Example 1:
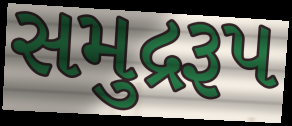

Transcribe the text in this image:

સમુદ્રરૂપ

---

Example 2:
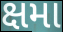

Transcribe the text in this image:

ક્ષમા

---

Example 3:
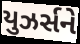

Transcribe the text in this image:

યુઝર્સને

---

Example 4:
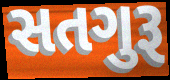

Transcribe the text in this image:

સતગુરૂ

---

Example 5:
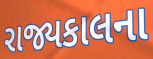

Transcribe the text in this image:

રાજ્યકાલના